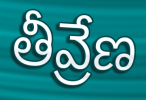
తీవ్రేణ